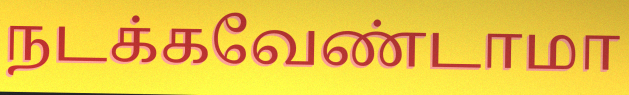
நடக்கவேண்டாமா